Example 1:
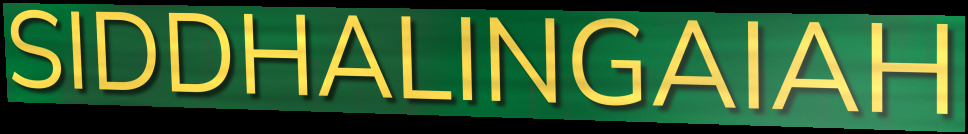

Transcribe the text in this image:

SIDDHALINGAIAH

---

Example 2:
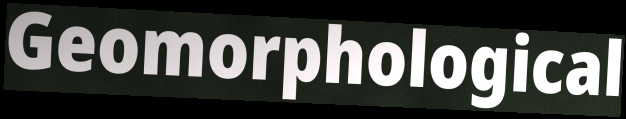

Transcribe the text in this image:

Geomorphological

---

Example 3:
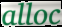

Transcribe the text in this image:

alloc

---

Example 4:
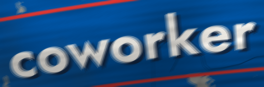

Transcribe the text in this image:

coworker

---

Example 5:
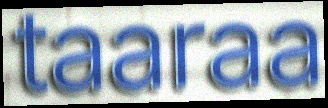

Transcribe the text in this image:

taaraa